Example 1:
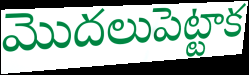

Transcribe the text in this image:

మొదలుపెట్టాక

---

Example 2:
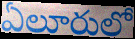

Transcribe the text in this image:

ఏలూరులో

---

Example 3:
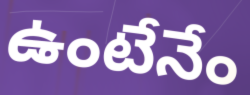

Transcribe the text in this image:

ఉంటేనేం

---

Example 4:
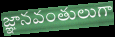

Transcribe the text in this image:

జ్ఞానవంతులుగా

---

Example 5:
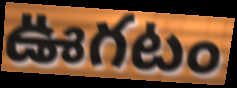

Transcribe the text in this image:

ఊగటం